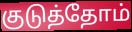
குடுத்தோம்